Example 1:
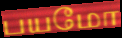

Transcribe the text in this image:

பயமோ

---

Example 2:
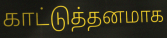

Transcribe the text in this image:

காட்டுத்தனமாக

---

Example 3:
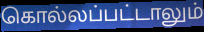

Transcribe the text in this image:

கொல்லப்பட்டாலும்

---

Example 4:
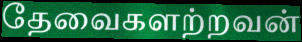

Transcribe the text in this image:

தேவைகளற்றவன்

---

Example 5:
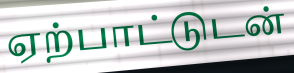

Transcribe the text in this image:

ஏற்பாட்டுடன்